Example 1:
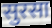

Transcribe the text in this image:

सुरसा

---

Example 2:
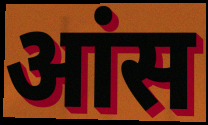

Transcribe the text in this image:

आंस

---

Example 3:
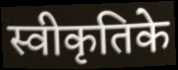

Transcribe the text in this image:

स्वीकृतिके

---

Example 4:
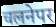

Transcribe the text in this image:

चलनेपर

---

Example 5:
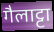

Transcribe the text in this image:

गैलाट्टा